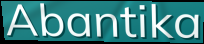
Abantika